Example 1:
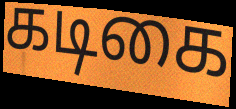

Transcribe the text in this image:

கடிகை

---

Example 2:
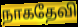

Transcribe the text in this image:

நாகதேவி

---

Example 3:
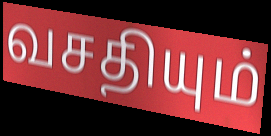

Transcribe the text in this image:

வசதியும்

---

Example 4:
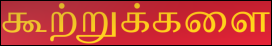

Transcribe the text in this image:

கூற்றுக்களை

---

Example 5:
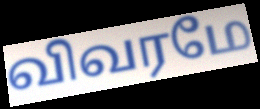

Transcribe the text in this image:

விவரமே